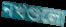
নখগুলো